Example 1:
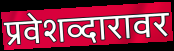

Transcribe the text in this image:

प्रवेशव्दारावर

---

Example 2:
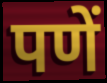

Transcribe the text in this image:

पणें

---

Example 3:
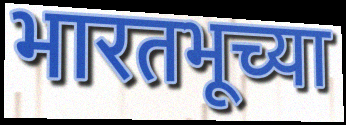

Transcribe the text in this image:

भारतभूच्या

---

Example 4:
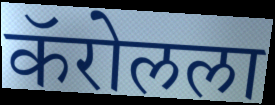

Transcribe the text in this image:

कॅरोलला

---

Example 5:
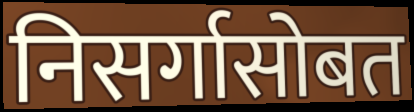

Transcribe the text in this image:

निसर्गासोबत